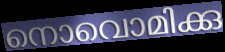
നൊവൊമിക്കു